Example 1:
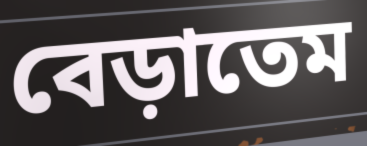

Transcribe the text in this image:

বেড়াতেম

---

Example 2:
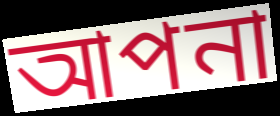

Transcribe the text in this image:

আপনা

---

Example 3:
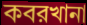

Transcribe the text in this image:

কবরখানা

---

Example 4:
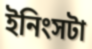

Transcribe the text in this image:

ইনিংসটা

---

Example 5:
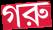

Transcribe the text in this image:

গরু